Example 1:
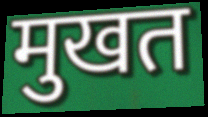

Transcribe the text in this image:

मुखत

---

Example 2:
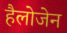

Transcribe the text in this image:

हैलोजेन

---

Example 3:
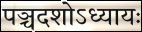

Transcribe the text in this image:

पञ्चदशोऽध्यायः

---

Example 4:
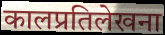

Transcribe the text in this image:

कालप्रतिलेखना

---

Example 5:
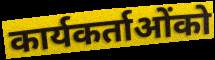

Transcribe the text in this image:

कार्यकर्ताओंको